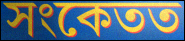
সংকেতত